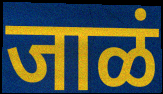
जाळं